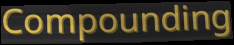
Compounding